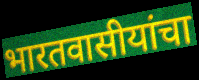
भारतवासीयांचा